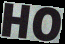
HO